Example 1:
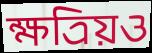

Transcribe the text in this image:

ক্ষত্রিয়ও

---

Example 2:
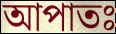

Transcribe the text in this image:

আপাতঃ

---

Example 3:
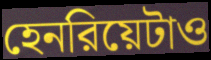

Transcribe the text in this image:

হেনরিয়েটাও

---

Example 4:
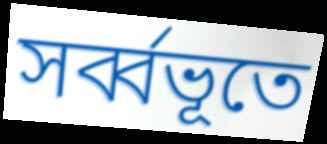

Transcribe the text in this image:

সর্ব্বভূতে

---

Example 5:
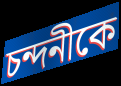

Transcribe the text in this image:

চন্দনীকে